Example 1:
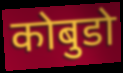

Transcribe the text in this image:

कोबुडो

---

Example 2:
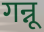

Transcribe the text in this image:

गन्नू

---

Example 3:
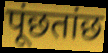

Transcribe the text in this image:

पूंछतांछ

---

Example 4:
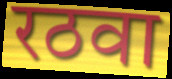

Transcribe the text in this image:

रठवा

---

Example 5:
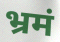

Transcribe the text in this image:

भ्रमं